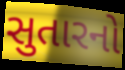
સુતારનો